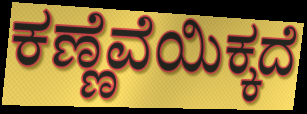
ಕಣ್ಣೆವೆಯಿಕ್ಕದೆ